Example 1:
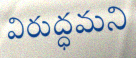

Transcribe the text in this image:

విరుద్ధమని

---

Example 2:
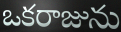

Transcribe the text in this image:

ఒకరాజును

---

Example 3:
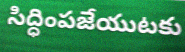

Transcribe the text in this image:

సిద్ధింపజేయుటకు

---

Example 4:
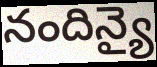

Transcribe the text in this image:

నందిన్యై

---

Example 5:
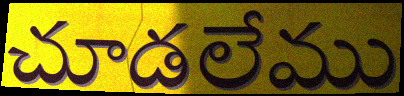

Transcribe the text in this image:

చూడలేము